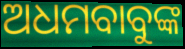
ଅଧମବାବୁଙ୍କ